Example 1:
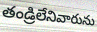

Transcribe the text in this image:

తండ్రిలేనివారును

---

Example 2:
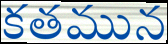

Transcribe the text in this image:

కతమున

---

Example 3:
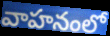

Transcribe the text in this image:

వాహనంలో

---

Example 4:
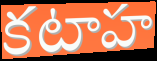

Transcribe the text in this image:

కటాహ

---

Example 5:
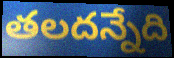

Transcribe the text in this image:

తలదన్నేది